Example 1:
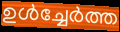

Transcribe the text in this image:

ഉൾച്ചേർത്ത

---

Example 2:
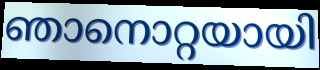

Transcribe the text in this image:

ഞാനൊറ്റയായി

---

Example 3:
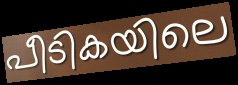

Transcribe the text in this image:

പീടികയിലെ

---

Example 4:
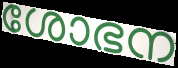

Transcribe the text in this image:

ശോഭന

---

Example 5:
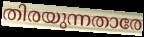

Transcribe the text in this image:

തിരയുന്നതാരേ